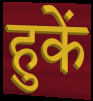
हुकें